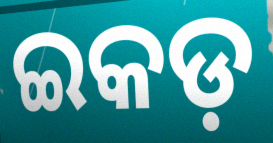
ଇକଡ଼